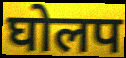
घोलप